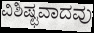
ವಿಶಿಷ್ಟವಾದವು